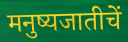
मनुष्यजातीचें